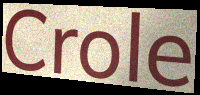
Crole